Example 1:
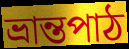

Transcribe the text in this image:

ভ্ৰান্তপাঠ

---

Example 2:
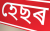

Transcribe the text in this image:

হেছৰ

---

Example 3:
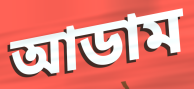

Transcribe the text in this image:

আডাম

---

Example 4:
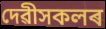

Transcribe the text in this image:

দেৱীসকলৰ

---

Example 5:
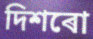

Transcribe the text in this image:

দিশৰো